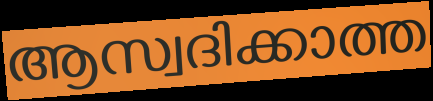
ആസ്വദിക്കാത്ത